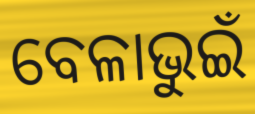
ବେଳାଭୁଇଁ